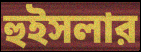
হুইসলার